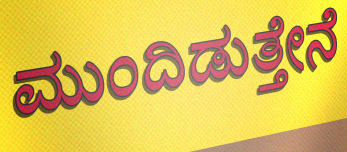
ಮುಂದಿಡುತ್ತೇನೆ